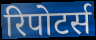
रिपोटर्स